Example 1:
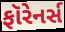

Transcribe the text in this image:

ફૉરેનર્સ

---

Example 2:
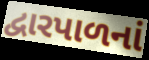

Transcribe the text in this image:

દ્વારપાળનાં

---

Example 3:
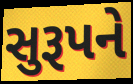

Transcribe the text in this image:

સુરૂપને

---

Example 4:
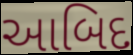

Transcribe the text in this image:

આબિદ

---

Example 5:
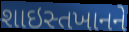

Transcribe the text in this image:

શાઇસ્તખાનને